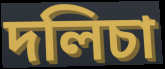
দলিচা